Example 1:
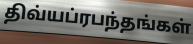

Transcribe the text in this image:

திவ்யப்ரபந்தங்கள்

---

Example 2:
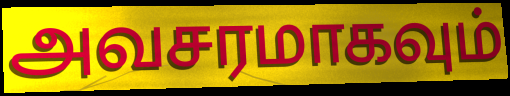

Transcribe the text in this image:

அவசரமாகவும்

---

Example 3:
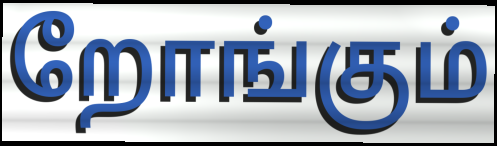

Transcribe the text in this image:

றோங்கும்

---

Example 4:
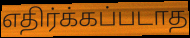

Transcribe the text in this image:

எதிர்க்கப்படாத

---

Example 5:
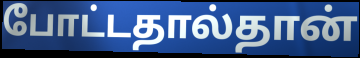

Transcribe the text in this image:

போட்டதால்தான்